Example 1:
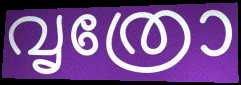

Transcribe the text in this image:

വൃത്രോ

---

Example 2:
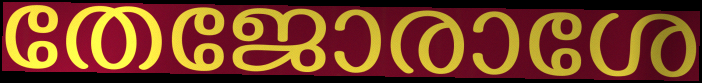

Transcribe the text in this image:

തേജോരാശേ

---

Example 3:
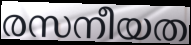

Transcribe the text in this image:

രസനീയത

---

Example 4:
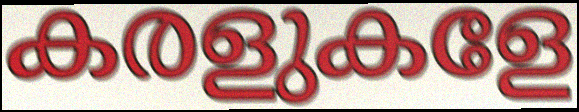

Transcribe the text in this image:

കരളുകളേ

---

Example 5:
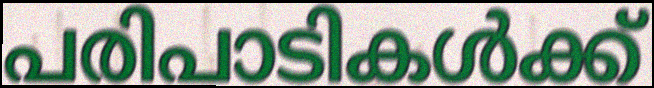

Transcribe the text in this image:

പരിപാടികൾക്ക്